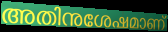
അതിനുശേഷമാണ്